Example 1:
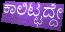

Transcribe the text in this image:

ಕಾಲಿಟ್ಟದ್ದೇ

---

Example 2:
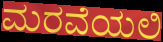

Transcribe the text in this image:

ಮರವೆಯಲಿ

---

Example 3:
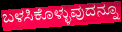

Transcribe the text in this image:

ಬಳಸಿಕೊಳ್ಳುವುದನ್ನೂ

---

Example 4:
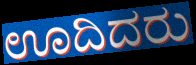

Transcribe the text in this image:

ಊದಿದರು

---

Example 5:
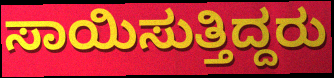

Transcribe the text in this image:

ಸಾಯಿಸುತ್ತಿದ್ದರು